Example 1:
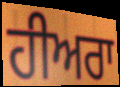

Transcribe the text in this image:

ਹੀਅਰਾ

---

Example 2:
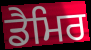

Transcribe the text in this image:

ਡੈਮਿਰ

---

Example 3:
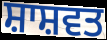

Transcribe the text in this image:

ਸ਼ਾਸ਼ਵਤ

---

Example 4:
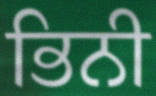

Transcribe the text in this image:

ਭਿਨੀ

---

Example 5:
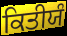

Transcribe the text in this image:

ਕਿਤੀਯੰ